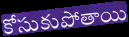
కోసుకుపోతాయి